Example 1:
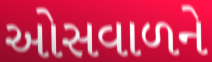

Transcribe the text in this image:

ઓસવાળને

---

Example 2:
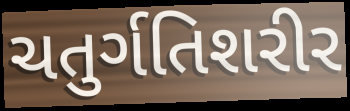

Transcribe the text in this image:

ચતુર્ગતિશરીર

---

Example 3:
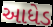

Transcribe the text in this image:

આધેડ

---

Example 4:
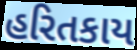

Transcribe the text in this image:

હરિતકાય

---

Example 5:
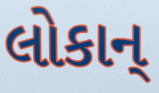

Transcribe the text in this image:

લોકાન્